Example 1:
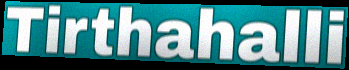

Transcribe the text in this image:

Tirthahalli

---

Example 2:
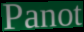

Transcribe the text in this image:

Panot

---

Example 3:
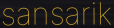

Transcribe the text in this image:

sansarik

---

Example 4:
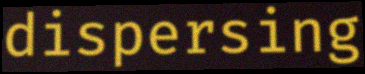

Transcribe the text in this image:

dispersing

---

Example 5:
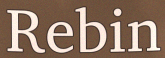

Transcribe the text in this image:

Rebin